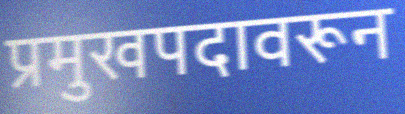
प्रमुखपदावरून